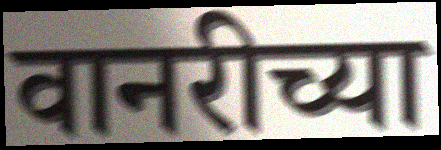
वानरीच्या